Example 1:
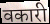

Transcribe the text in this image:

वकारी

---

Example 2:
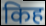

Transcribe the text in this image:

किह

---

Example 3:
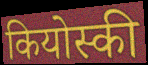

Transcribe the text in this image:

कियोस्की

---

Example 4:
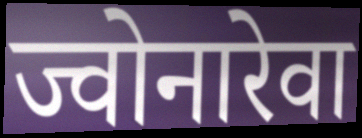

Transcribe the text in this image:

ज्वोनारेवा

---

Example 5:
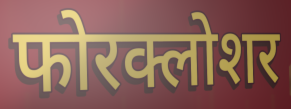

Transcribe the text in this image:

फोरक्लोशर